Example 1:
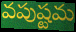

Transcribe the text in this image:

వపుష్టమ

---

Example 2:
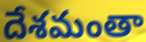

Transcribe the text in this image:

దేశమంతా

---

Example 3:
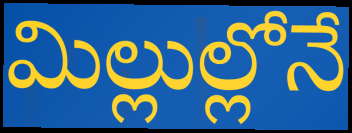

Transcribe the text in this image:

మిల్లుల్లోనే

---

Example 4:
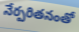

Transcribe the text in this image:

నేర్పరితనంతో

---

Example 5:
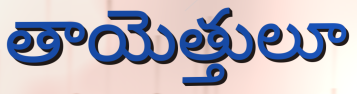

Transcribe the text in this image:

తాయెత్తులూ